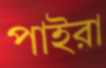
পাইরা